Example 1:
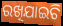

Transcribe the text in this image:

ରଖିଯାଇଚି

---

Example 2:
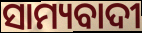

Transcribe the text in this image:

ସାମ୍ୟବାଦୀ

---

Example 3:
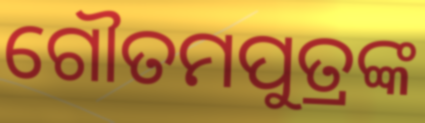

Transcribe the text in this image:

ଗୌତମପୁତ୍ରଙ୍କ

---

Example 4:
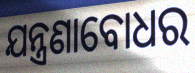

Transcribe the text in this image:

ଯନ୍ତ୍ରଣାବୋଧର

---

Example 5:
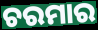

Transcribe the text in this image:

ଚରମାର